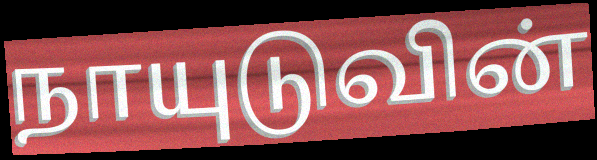
நாயுடுவின்